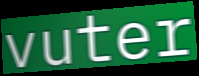
vuter